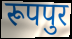
रूपपुर